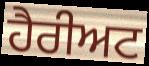
ਹੈਰੀਅਟ